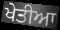
ਖੇਤੀਆ